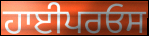
ਹਾਈਪਰਓਸ